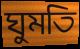
ঘুমতি